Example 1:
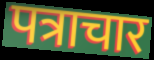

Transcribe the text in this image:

पत्राचार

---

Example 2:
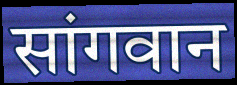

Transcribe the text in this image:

सांगवान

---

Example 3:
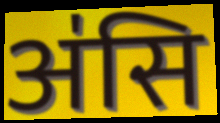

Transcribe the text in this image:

अ॑सि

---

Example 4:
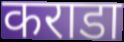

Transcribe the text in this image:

कराडा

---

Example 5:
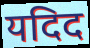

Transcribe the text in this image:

यदिद